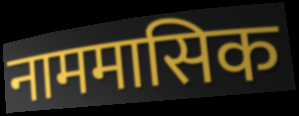
नाममासिक